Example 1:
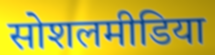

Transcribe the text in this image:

सोशलमीडिया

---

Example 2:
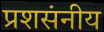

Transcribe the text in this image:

प्रशसंनीय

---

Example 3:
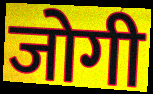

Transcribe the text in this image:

जोगी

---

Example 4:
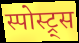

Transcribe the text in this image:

स्पोस्ट्र्स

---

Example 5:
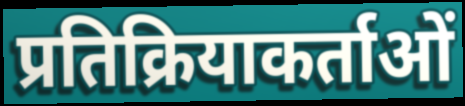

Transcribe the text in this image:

प्रतिक्रियाकर्ताओं